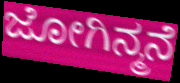
ಜೋಗಿನ್ಮನೆ